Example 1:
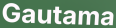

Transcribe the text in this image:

Gautama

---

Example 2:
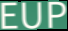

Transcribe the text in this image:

EUP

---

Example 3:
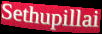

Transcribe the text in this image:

Sethupillai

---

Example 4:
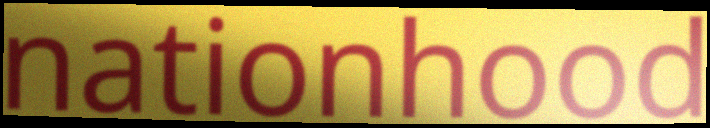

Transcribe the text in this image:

nationhood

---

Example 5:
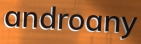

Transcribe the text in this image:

androany